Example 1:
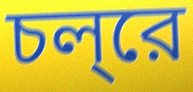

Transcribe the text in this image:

চল্‌রে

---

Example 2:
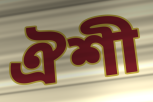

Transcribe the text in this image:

ঐশী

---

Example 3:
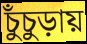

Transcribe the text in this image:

চুঁচুড়ায়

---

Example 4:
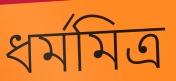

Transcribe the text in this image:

ধর্মমিত্র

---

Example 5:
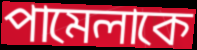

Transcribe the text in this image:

পামেলাকে